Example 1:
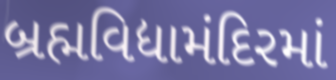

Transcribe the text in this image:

બ્રહ્મવિદ્યામંદિરમાં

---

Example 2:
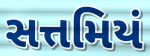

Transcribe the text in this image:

સત્તમિયં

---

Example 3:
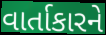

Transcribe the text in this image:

વાર્તાકારને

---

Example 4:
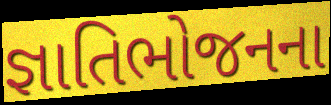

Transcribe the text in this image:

જ્ઞાતિભોજનના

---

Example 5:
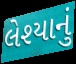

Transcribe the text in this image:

લેશ્યાનું